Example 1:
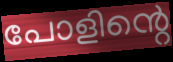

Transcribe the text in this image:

പോളിന്റെ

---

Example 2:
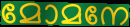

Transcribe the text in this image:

മോമനേ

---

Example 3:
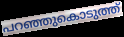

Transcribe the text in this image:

പറഞ്ഞുകൊടുത്ത്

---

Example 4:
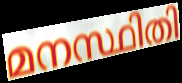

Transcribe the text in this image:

മനസ്ഥിതി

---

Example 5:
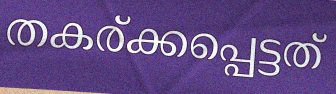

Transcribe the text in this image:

തകര്ക്കപ്പെട്ടത്